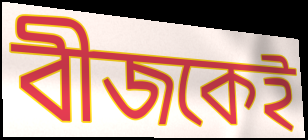
বীজকেই